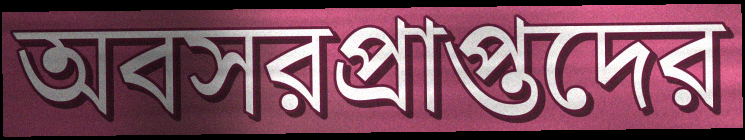
অবসরপ্রাপ্তদের